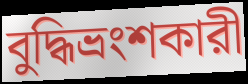
বুদ্ধিভ্রংশকারী